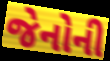
જેનોની